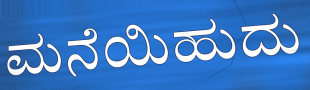
ಮನೆಯಿಹುದು